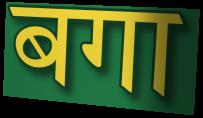
बगा